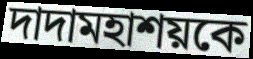
দাদামহাশয়কে